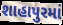
શાહાપુરમાં